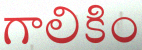
గాలికిం